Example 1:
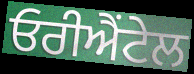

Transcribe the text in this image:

ਓਰੀਐਂਟੇਲ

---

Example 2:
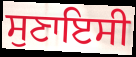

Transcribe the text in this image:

ਸੁਣਾਇਸੀ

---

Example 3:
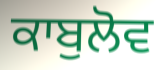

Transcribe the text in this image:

ਕਾਬੁਲੋਵ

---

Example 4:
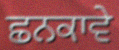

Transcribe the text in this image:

ਛਨਕਾਵੇ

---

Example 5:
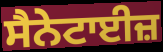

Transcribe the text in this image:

ਸੈਨੇਟਾਈਜ਼